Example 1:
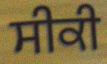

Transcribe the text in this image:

ਸੀਕੀ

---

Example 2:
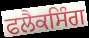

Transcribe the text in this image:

ਫਲੈਕਸਿੰਗ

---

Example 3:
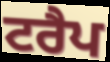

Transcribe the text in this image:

ਟਰੈਪ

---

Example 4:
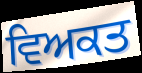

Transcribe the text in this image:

ਵਿਅਕਤ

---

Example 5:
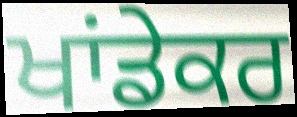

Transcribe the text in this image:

ਖਾਂਡੇਕਰ